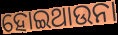
ହୋଇଥାଉନା